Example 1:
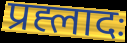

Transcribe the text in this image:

प्रह्लादः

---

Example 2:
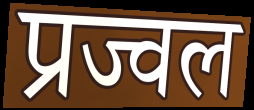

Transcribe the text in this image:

प्रज्वल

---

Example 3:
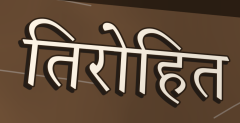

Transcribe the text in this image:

तिरोहित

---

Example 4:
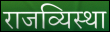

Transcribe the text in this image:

राजव्यिस्था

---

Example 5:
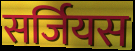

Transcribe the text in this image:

सर्जियस